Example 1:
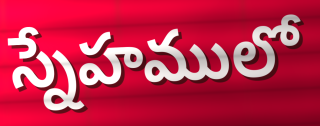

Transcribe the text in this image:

స్నేహములో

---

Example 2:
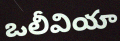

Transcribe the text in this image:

ఒలీవియా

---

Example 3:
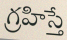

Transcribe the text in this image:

గ్రహిస్తే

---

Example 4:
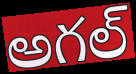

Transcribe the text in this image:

అగల్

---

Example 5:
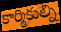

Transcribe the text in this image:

కార్మికుల్ని